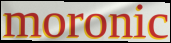
moronic